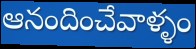
ఆనందించేవాళ్ళం